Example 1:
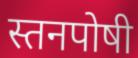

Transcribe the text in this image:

स्तनपोषी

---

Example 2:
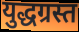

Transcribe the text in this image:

युद्धग्रस्त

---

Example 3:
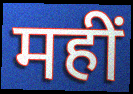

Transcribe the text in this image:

महीं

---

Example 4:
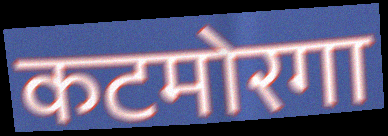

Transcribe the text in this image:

कटमोरगा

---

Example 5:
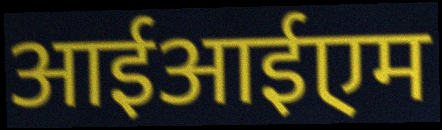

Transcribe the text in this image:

आईआईएम